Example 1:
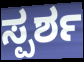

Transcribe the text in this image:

ಸ್ಪರ್ಶ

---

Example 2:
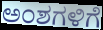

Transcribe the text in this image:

ಅಂಶಗಳಿಗೆ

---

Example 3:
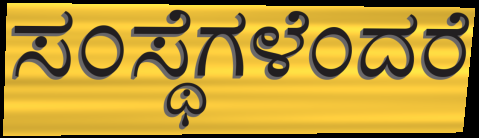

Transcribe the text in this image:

ಸಂಸ್ಥೆಗಳೆಂದರೆ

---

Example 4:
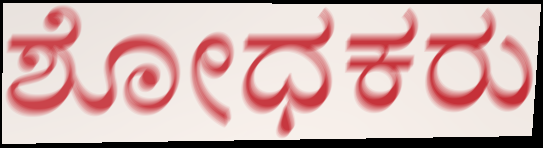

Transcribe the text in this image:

ಶೋಧಕರು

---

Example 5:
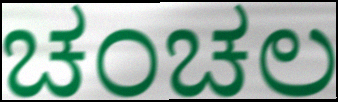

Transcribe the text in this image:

ಚಂಚಲ